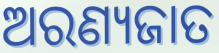
ଅରଣ୍ୟଜାତ